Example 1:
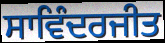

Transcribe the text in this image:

ਸਾਵਿੰਦਰਜੀਤ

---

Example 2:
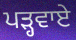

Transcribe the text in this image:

ਪੜ੍ਹਵਾਏ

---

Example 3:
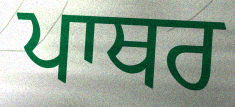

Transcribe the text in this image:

ਪਾਥਰ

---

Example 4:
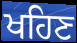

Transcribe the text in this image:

ਖਹਿਣ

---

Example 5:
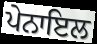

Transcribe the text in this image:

ਪੇਨਾਇਲ